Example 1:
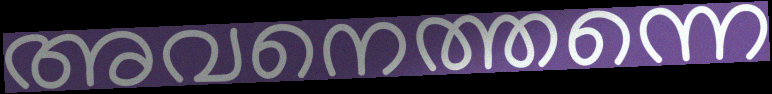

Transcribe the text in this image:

അവനെത്തന്നെ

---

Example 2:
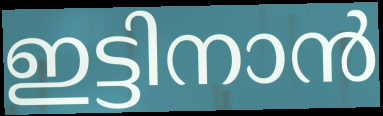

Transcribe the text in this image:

ഇട്ടിനാൻ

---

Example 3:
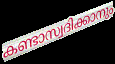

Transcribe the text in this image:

കണ്ടാസ്വദിക്കാനും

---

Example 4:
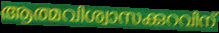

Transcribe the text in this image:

ആത്മവിശ്വാസക്കുറവിന്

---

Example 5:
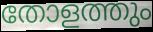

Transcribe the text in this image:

തോളത്തും